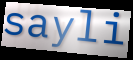
sayli